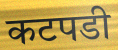
कटपडी